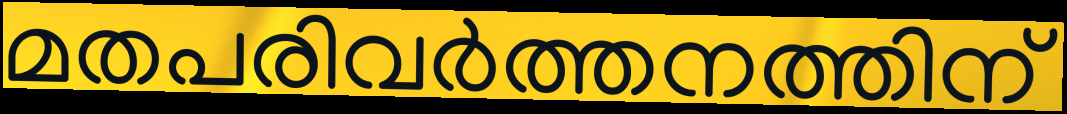
മതപരിവർത്തനത്തിന്